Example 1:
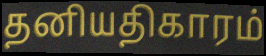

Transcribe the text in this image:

தனியதிகாரம்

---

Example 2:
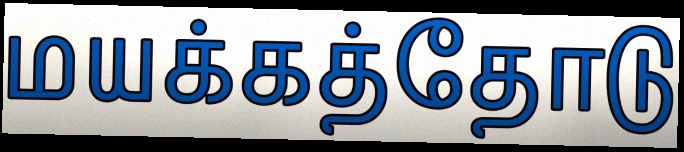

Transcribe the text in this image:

மயக்கத்தோடு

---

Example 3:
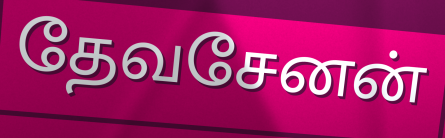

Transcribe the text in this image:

தேவசேனன்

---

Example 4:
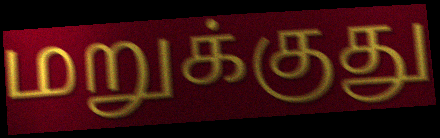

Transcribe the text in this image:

மறுக்குது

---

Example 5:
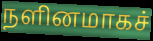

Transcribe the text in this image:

நளினமாகச்